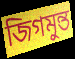
জিগমুন্ত